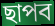
ছাপব